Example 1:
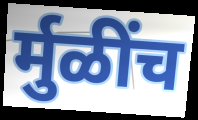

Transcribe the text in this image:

र्मुळींच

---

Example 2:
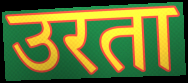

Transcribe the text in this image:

उरता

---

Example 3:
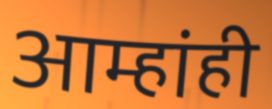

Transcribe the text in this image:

आम्हांही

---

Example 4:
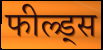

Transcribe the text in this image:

फील्ड्स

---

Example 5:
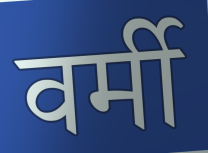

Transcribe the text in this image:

वर्मी